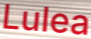
Lulea